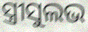
ସ୍ତ୍ରୀସୁଲଭ